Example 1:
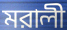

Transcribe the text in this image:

মরালী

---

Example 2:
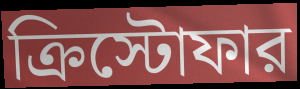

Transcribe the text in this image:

ক্রিস্টোফার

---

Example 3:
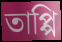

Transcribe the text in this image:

তাপ্পি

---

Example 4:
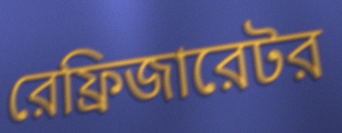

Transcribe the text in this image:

রেফ্রিজারেটর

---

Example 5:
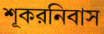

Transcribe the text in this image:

শূকরনিবাস